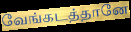
வேங்கடத்தானே